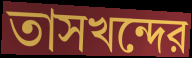
তাসখন্দের